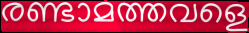
രണ്ടാമത്തവളെ